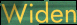
Widen